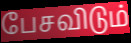
பேசவிடும்